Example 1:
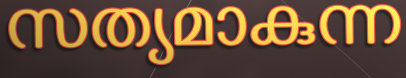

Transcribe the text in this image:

സത്യമാകുന്ന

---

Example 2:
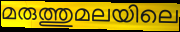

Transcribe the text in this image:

മരുത്തുമലയിലെ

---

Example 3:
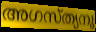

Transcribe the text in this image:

അഗസ്ത്യനു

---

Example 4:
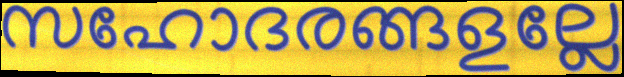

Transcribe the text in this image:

സഹോദരങ്ങളല്ലേ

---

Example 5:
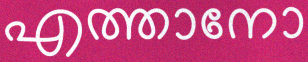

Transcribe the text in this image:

എത്താനോ